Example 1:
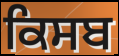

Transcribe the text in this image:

ਕਿਸਬ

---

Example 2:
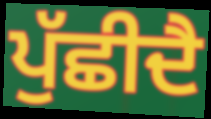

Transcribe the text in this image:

ਪੁੱਛੀਦੈ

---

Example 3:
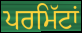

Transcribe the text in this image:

ਪਰਮਿੱਟਾਂ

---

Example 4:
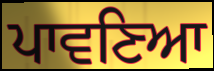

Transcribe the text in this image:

ਪਾਵਣਿਆ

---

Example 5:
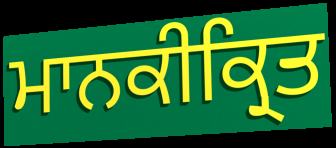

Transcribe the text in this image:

ਮਾਨਕੀਕ੍ਰਿਤ